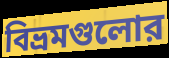
বিভ্রমগুলোর